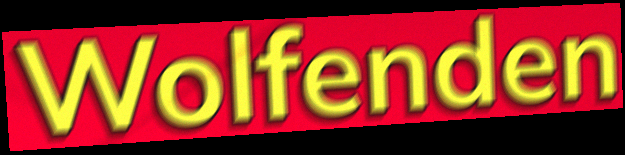
Wolfenden